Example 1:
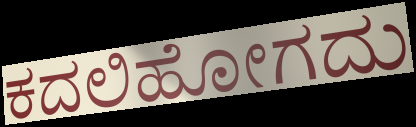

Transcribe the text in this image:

ಕದಲಿಹೋಗದು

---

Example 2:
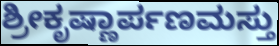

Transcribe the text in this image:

ಶ್ರೀಕೃಷ್ಣಾರ್ಪಣಮಸ್ತು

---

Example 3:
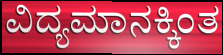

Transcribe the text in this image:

ವಿದ್ಯಮಾನಕ್ಕಿಂತ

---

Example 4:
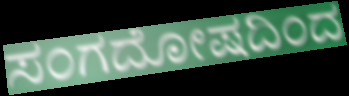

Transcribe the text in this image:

ಸಂಗದೋಷದಿಂದ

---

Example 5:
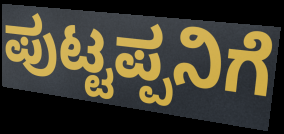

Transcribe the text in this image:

ಪುಟ್ಟಪ್ಪನಿಗೆ